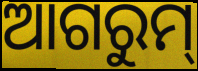
ଆଗରୁମ୍